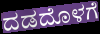
ದಡದೊಳಗೆ